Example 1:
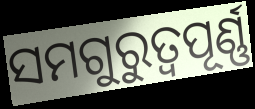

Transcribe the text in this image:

ସମଗୁରୁତ୍ଵପୂର୍ଣ୍ଣ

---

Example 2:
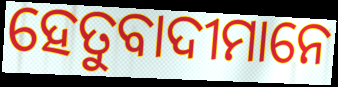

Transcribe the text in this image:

ହେତୁବାଦୀମାନେ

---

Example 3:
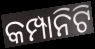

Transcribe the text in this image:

କମ୍ପାନିଟି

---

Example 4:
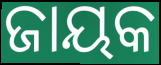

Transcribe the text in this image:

ଜାୟକ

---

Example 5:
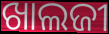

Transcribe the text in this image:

ଖାଲଜୀ